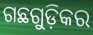
ଗଛଗୁଡ଼ିକର